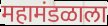
महामंडळाला